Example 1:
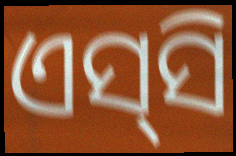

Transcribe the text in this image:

ଏସ୍‍ସି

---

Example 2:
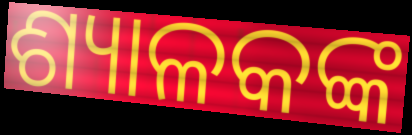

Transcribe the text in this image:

ଶ୍ୟାଳକଙ୍କ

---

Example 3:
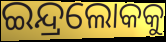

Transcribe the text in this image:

ଇନ୍ଦ୍ରଲୋକକୁ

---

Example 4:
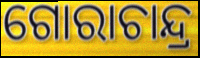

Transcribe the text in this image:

ଗୋରାଚାନ୍ଦ୍ର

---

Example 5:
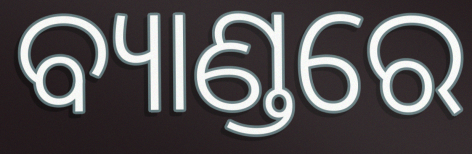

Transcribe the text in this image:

ବ୍ୟାଣ୍ଡରେ